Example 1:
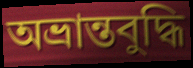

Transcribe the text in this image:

অভ্রান্তবুদ্ধি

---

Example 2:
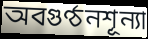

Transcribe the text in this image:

অবগুণ্ঠনশূন্যা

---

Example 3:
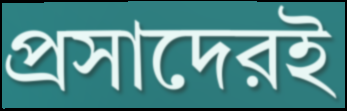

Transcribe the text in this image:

প্রসাদেরই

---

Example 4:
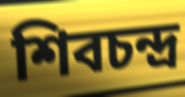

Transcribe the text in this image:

শিবচন্দ্র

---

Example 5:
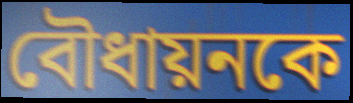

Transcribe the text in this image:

বৌধায়নকে